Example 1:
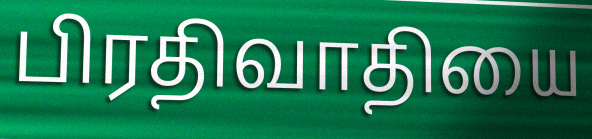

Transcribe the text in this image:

பிரதிவாதியை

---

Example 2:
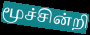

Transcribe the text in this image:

மூச்சின்றி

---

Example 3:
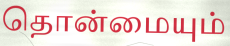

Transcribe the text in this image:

தொன்மையும்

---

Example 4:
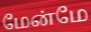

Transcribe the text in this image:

மேன்மே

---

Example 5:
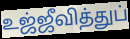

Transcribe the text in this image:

உஜ்ஜீவித்துப்